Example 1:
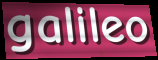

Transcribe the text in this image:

galileo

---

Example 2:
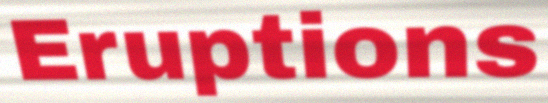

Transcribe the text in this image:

Eruptions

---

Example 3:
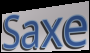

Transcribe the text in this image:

Saxe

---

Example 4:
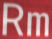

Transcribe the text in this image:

Rm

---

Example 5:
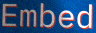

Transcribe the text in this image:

Embed